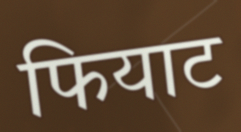
फियाट